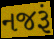
નજરૂં